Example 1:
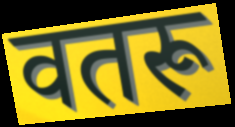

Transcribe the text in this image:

वतरू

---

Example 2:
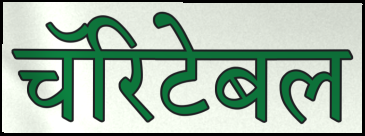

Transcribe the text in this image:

चॅरिटेबल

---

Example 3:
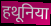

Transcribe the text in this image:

हथूनिया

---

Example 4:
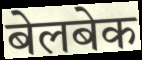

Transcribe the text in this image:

बेलबेक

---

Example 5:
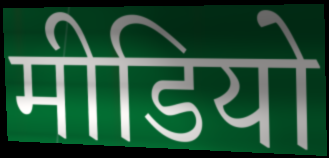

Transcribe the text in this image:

मीडियो